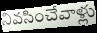
నివసించేవాళ్లు